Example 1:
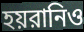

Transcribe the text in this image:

হয়রানিও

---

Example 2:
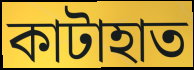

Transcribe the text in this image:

কাটাহাত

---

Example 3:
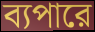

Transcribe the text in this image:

ব্যপারে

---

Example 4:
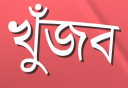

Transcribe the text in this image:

খুঁজব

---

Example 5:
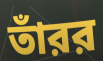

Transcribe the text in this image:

তাঁরর